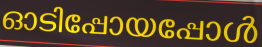
ഓടിപ്പോയപ്പോൾ